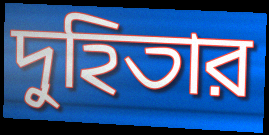
দুহিতার